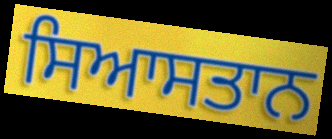
ਸਿਆਸਤਾਨ